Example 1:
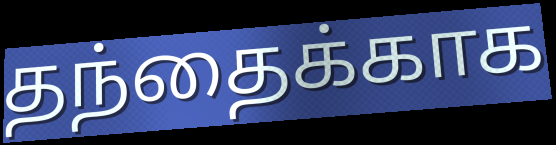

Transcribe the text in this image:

தந்தைக்காக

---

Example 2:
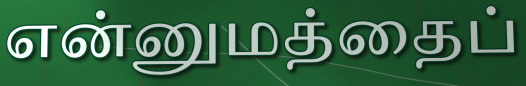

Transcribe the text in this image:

என்னுமத்தைப்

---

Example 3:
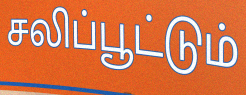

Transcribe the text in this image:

சலிப்பூட்டும்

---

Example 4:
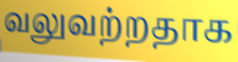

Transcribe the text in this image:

வலுவற்றதாக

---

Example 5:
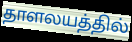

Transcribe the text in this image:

தாளலயத்தில்